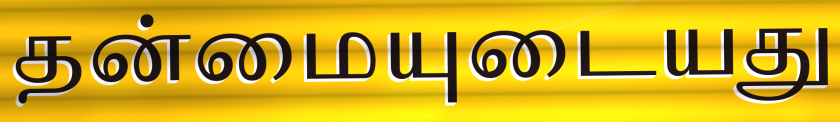
தன்மையுடையது